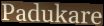
Padukare